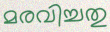
മരവിച്ചതു